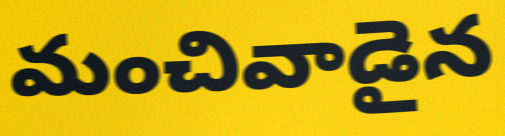
మంచివాడైన